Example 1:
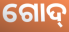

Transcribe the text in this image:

ଗୋଦ୍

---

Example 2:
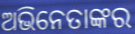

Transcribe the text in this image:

ଅଭିନେତାଙ୍କର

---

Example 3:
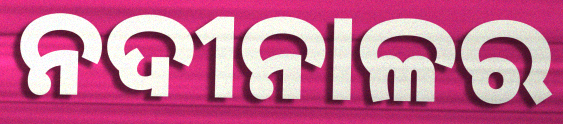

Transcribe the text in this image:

ନଦୀନାଳର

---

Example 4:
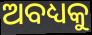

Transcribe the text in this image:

ଅବଧ୍ୟକୁ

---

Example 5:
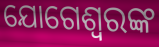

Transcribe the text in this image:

ଯୋଗେଶ୍ୱରଙ୍କ